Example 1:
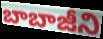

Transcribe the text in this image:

బాబాజీని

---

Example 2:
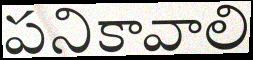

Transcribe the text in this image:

పనికావాలి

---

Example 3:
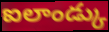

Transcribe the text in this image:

ఐలాండ్కు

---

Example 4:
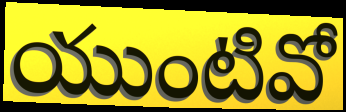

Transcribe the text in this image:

యుంటివో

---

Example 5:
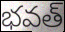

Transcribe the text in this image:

భవత్